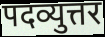
पदव्युत्तर